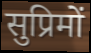
सुप्रिमों